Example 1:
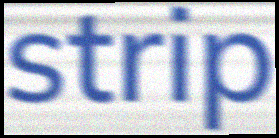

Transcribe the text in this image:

strip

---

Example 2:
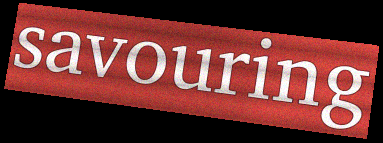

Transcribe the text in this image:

savouring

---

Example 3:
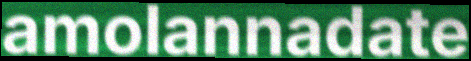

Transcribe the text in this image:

amolannadate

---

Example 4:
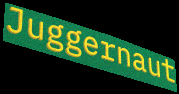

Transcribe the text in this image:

Juggernaut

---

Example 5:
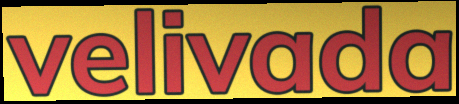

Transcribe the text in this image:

velivada